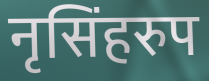
नृसिंहरुप